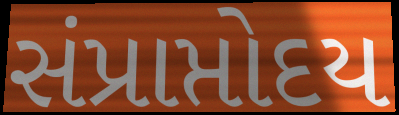
સંપ્રાપ્તોદય